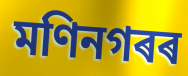
মণিনগৰৰ